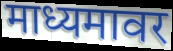
माध्यमावर